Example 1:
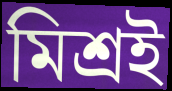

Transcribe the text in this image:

মিশ্ৰই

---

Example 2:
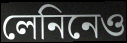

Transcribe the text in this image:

লেনিনেও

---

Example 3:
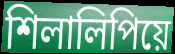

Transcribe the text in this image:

শিলালিপিয়ে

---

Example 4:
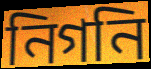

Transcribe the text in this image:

নিগনি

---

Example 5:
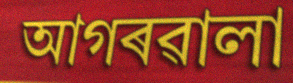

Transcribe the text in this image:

আগৰৱালা